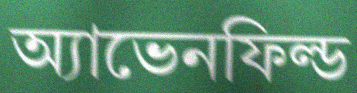
অ্যাভেনফিল্ড